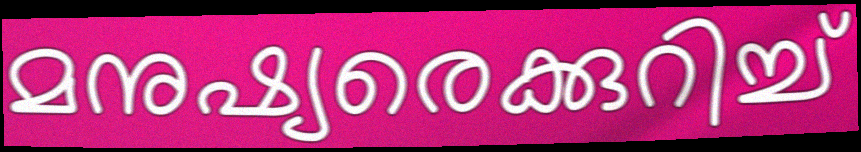
മനുഷ്യരെക്കുറിച്ച്